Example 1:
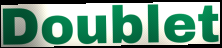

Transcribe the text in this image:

Doublet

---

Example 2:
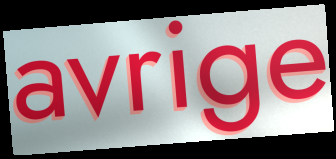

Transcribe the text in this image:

avrige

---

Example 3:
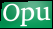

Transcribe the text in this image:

Opu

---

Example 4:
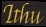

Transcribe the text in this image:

Ithu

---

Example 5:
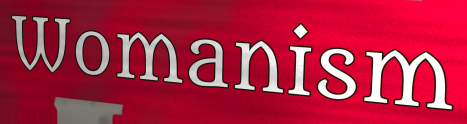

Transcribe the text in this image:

Womanism